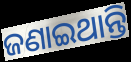
ଜଣାଇଥାନ୍ତି